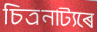
চিত্ৰনাট্যৰে